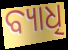
ବ୍ୟାଧି